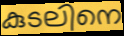
കുടലിനെ